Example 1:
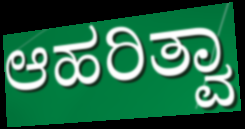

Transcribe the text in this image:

ಆಹರಿತ್ವಾ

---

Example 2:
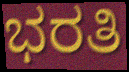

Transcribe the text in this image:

ಭರತಿ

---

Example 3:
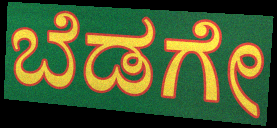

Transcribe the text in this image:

ಬೆಡಗೇ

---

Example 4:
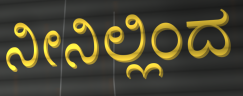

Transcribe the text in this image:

ನೀನಿಲ್ಲಿಂದ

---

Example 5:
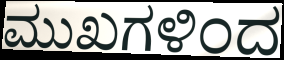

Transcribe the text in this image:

ಮುಖಗಳಿಂದ